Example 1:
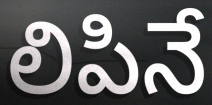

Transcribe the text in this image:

లిపినే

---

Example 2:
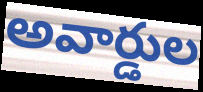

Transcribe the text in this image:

అవార్డుల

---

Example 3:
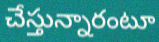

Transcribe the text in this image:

చేస్తున్నారంటూ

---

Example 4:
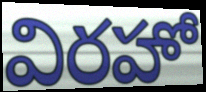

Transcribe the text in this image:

విరహో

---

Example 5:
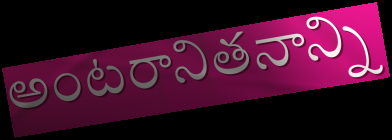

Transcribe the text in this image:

అంటరానితనాన్ని